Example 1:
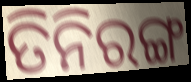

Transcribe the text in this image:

ତିନିରଙ୍ଗ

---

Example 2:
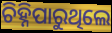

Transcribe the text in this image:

ଚିହ୍ନିପାରୁଥିଲେ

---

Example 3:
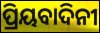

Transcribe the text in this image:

ପ୍ରିୟବାଦିନୀ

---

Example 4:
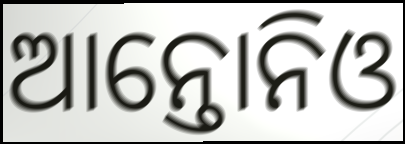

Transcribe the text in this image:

ଆନ୍ତୋନିଓ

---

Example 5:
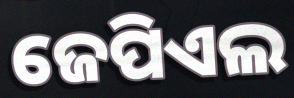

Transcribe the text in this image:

ଜେପିଏଲ